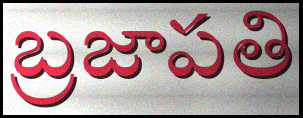
బ్రజాపతి